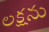
లక్షను